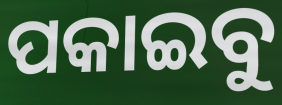
ପକାଇବୁ